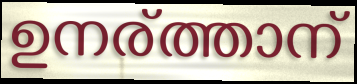
ഉനര്ത്താന്